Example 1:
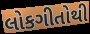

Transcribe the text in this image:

લોકગીતોથી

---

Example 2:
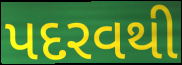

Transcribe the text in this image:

પદરવથી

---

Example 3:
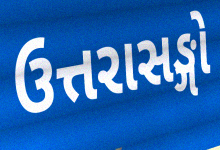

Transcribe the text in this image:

ઉત્તરાસઙ્ગો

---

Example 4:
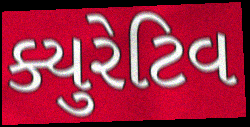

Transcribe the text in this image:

ક્યુરેટિવ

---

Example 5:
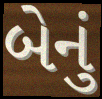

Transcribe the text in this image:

બેનું